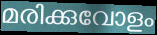
മരിക്കുവോളം